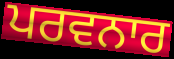
ਪਰਵਨਾਰ